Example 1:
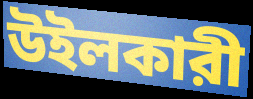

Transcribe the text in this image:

উইলকারী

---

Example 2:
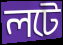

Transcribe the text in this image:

লটে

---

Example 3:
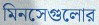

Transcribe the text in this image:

মিনসেগুলোর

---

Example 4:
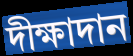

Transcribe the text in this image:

দীক্ষাদান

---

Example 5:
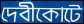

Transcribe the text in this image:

দেবীকোটে